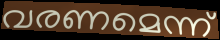
വരണമെന്ന്